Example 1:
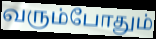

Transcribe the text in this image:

வரும்போதும்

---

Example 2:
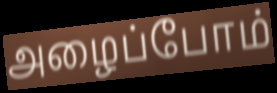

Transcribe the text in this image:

அழைப்போம்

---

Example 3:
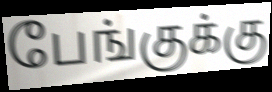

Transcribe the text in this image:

பேங்குக்கு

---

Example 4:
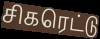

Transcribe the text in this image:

சிகரெட்டு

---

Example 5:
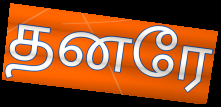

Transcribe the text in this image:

தனரே